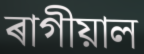
ৰাগীয়াল